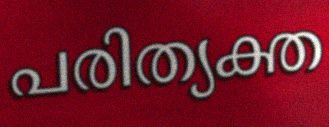
പരിത്യക്ത